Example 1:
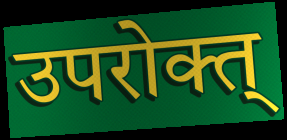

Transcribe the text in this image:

उपरोक्त्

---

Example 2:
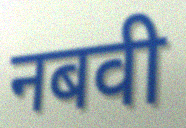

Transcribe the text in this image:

नबवी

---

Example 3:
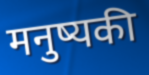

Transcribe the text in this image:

मनुष्यकी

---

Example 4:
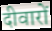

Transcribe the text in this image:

दीवारों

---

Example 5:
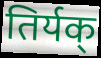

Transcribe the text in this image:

तिर्यक्